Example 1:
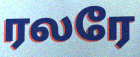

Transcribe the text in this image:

ரலரே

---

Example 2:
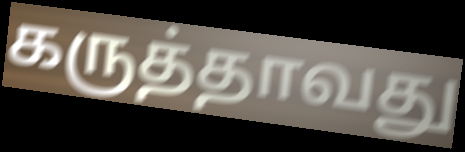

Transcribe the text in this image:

கருத்தாவது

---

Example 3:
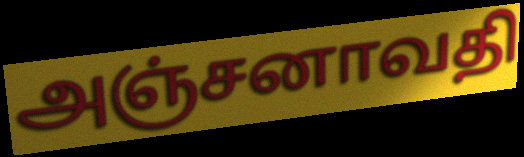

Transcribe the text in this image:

அஞ்சனாவதி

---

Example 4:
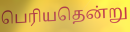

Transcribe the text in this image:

பெரியதென்று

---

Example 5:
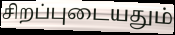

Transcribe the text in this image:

சிறப்புடையதும்